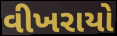
વીખરાયો